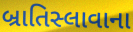
બ્રાતિસ્લાવાના